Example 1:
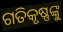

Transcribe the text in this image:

ଗତିକୃଷ୍ଣଙ୍କୁ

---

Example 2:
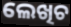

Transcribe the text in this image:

ଲେଖିଚ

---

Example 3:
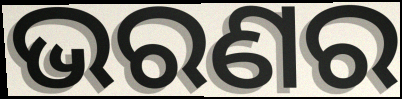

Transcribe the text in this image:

ଭରଣର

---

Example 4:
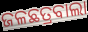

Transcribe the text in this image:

ଜଳଛତ୍ରବାଲା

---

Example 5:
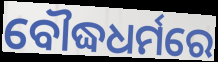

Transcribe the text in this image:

ବୌଦ୍ଧଧର୍ମରେ